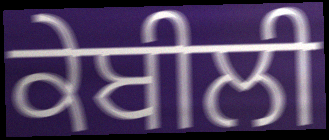
ਕੇਬੀਲੀ